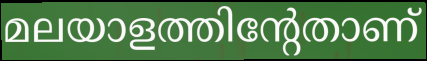
മലയാളത്തിന്റേതാണ്